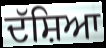
ਦੱਸ਼ਿਆ